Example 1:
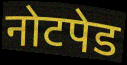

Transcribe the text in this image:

नोटपेड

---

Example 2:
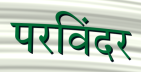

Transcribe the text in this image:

परविंदर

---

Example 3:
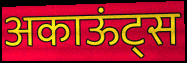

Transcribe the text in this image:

अकाऊंट्स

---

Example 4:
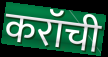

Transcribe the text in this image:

करॉची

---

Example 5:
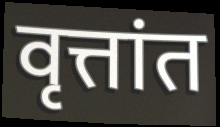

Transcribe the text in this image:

वृत्तांत